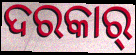
ଦରକାର୍